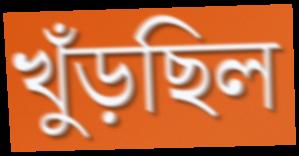
খুঁড়ছিল